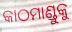
କାଠମାଣ୍ଡୁକୁ